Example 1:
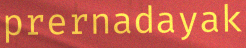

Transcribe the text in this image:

prernadayak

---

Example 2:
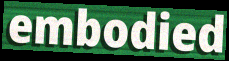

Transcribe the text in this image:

embodied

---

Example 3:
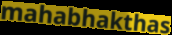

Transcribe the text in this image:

mahabhakthas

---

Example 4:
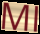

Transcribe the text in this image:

MI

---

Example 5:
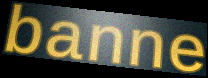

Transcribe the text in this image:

banne